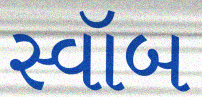
સ્વૉબ